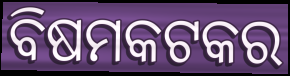
ବିଷମକଟକର